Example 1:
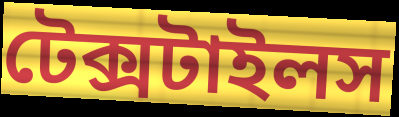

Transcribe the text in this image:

টেক্সটাইলস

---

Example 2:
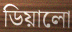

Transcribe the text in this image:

ডিয়ালো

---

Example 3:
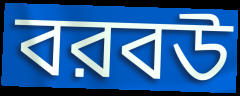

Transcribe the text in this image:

বরবউ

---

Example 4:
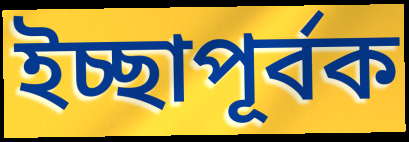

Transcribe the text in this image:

ইচ্ছাপূর্বক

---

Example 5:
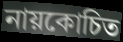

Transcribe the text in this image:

নায়কোচিত